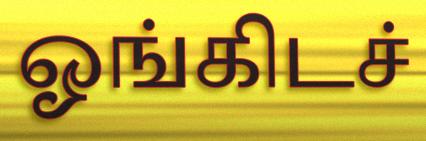
ஓங்கிடச்